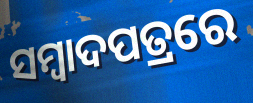
ସମ୍ୱାଦପତ୍ରରେ